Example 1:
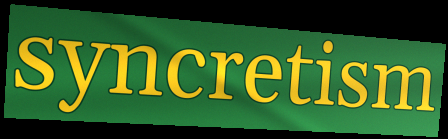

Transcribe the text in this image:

syncretism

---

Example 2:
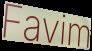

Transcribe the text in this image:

Favim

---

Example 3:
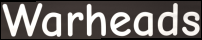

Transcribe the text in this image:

Warheads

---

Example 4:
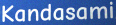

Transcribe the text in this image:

Kandasami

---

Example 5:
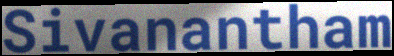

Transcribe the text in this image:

Sivanantham